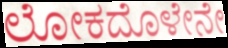
ಲೋಕದೊಳೇನೇ